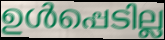
ഉൾപ്പെടില്ല